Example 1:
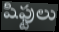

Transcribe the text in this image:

షిఫ్టులు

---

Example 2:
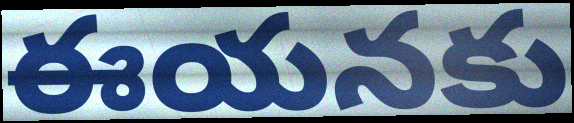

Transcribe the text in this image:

ఈయనకు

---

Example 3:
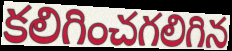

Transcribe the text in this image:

కలిగించగలిగిన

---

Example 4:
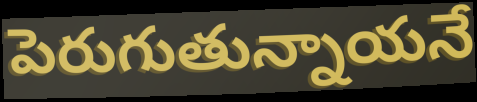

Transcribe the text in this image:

పెరుగుతున్నాయనే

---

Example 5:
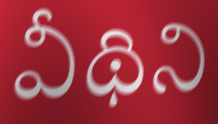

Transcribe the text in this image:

వీథిని